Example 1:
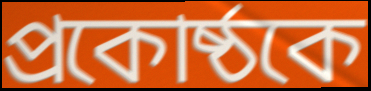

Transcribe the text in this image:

প্রকোষ্ঠকে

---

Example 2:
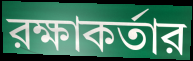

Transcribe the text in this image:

রক্ষাকর্তার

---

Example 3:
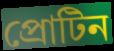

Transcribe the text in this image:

প্রোটিন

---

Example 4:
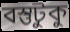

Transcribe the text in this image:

বস্তুটুকু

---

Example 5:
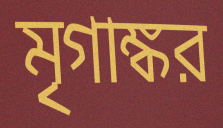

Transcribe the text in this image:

মৃগাঙ্কর